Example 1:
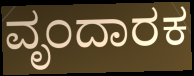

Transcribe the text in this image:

ವೃಂದಾರಕ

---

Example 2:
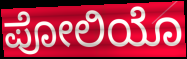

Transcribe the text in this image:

ಪೋಲಿಯೊ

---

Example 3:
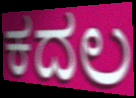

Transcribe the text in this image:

ಕದಲ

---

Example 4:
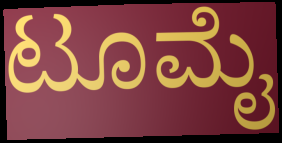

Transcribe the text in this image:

ಟೂಮೈ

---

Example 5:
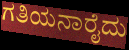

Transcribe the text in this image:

ಗತಿಯನಾರೈದು